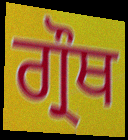
ਗ੍ਰੌਥ